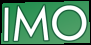
IMO